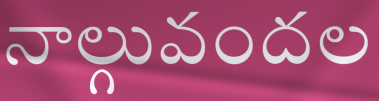
నాల్గువందల